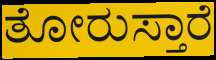
ತೋರುಸ್ತಾರೆ